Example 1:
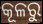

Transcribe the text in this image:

କୂଳରୁ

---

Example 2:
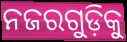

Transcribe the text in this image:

ନଜରଗୁଡ଼ିକୁ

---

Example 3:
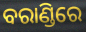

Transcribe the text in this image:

ବରାଣ୍ଡିରେ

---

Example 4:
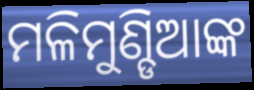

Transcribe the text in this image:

ମଳିମୁଣ୍ଡିଆଙ୍କ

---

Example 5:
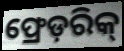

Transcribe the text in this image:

ଫ୍ରେଡ଼ରିକ୍